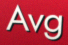
Avg